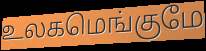
உலகமெங்குமே